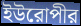
ইউরোপীর